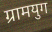
ग्रामयुग